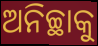
ଅନିଚ୍ଛାକୁ